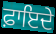
ਫ਼ਾਇਦੇ